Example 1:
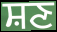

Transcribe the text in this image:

ਸ਼ਣ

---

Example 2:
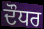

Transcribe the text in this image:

ਦੌਧਰ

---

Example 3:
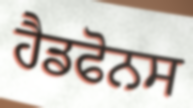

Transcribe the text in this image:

ਹੈਡਫੋਨਸ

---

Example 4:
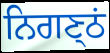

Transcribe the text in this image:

ਨਿਗਣ੍ਠਂ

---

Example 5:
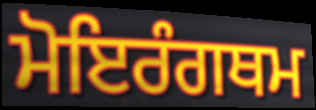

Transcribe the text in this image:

ਮੋਇਰੰਗਥਮ